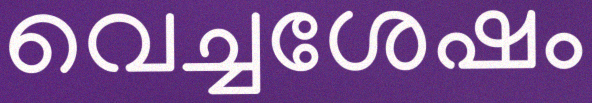
വെച്ചശേഷം